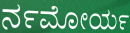
ರ್ನಮೋರ್ಯ